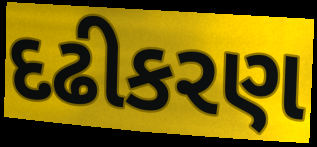
દઢીકરણ